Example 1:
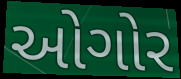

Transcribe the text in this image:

ઓગોર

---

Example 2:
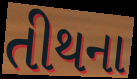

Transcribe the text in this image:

તીથના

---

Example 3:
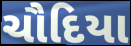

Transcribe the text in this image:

ચૌદિયા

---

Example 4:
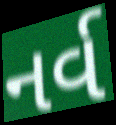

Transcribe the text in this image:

નર્વ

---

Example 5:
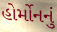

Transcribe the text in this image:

હોર્મોનનું